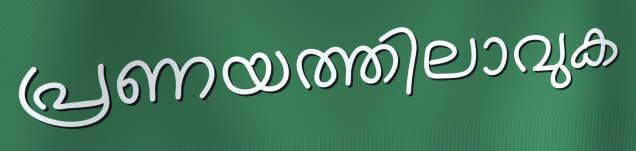
പ്രണയത്തിലാവുക